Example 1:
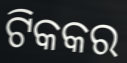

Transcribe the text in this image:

ଟିକକର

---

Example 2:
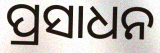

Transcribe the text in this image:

ପ୍ରସାଧନ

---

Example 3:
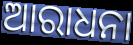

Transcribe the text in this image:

ଆରାଧନା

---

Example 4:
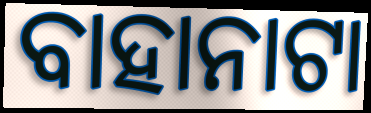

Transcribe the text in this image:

ବାହାନାଟା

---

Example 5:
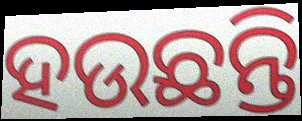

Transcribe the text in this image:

ହଉଛନ୍ତି